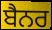
ਬੈਨਰ